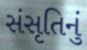
સંસૃતિનું